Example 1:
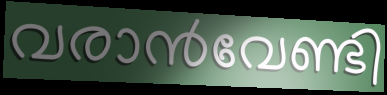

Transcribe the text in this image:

വരാൻവേണ്ടി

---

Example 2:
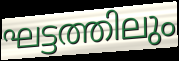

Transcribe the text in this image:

ഘട്ടത്തിലും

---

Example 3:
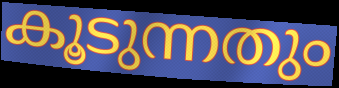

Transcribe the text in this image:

കൂടുന്നതും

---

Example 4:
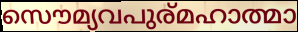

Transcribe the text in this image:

സൌമ്യവപുര്മഹാത്മാ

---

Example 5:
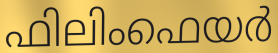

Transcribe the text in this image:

ഫിലിംഫെയർ